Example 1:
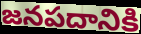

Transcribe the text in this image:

జనపదానికి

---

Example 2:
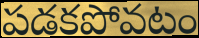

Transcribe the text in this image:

పడకపోవటం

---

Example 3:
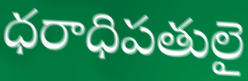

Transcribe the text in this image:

ధరాధిపతులై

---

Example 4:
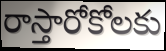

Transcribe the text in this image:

రాస్తారోకోలకు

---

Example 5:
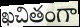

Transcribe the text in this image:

ఖచితంగా